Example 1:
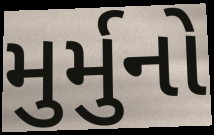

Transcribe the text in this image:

મુર્મુનો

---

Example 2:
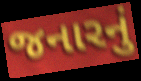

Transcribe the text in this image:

જનારનું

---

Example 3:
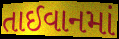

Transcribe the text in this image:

તાઈવાનમાં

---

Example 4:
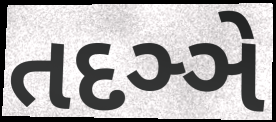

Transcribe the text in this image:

તદઞ્ઞે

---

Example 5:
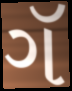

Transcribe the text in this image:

ગૅ